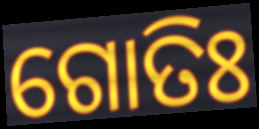
ଗୋତିଃ